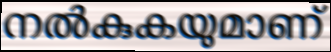
നൽകുകയുമാണ്